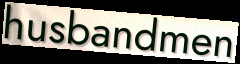
husbandmen